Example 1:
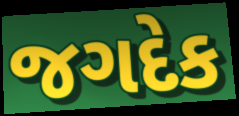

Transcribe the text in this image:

જગદેક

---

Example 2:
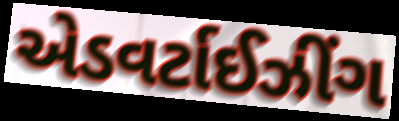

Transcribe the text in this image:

એડવર્ટાઈઝીંગ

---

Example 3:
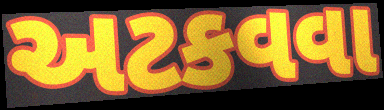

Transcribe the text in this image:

અટકવવા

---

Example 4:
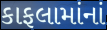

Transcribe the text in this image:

કાફલામાંનાં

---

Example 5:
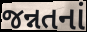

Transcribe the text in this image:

જન્નતનાં